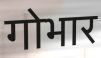
गोभार